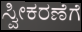
ಸ್ವೀಕರಣೆಗೆ